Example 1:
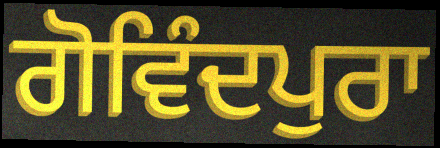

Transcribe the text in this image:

ਗੋਵਿੰਦਪੁਰਾ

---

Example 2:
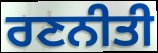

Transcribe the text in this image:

ਰਣਨੀਤੀ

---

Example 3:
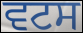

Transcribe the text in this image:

ਵਟਸ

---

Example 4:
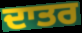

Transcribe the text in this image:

ਦਾਤਰ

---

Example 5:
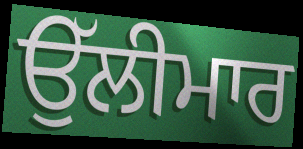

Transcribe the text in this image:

ਉੱਲੀਮਾਰ